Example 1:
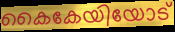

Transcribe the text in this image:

കൈകേയിയോട്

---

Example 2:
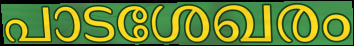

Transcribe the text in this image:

പാടശേഖരം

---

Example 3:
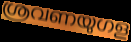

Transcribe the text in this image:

ശ്രവണയുഗള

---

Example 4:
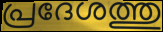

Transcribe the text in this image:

പ്രദേശത്തു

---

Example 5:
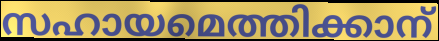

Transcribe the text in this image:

സഹായമെത്തിക്കാന്